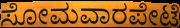
ಸೋಮವಾರಪೇಟೆ